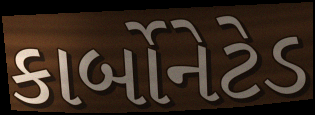
કાર્બોનેટેડ